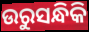
ଉରୁସନ୍ଧିକି